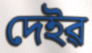
দেইৱ